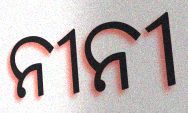
ନୀନୀ